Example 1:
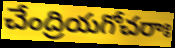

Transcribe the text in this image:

చేంద్రియగోచరాః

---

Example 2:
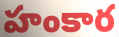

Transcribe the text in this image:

హంకార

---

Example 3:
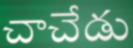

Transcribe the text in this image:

చాచేడు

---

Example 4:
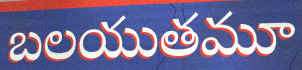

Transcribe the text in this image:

బలయుతమూ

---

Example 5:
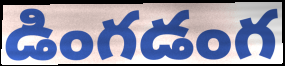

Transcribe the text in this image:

డింగడంగ